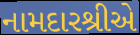
નામદારશ્રીએ